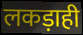
लकड़ाही